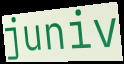
juniv